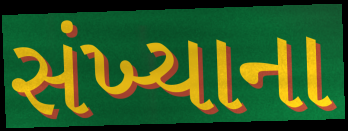
સંખ્યાના